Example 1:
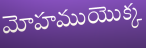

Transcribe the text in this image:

మోహముయొక్క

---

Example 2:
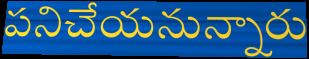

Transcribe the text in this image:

పనిచేయనున్నారు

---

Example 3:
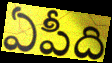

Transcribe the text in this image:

ఏపీది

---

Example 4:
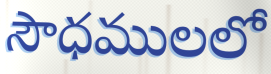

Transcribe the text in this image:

సౌధములలో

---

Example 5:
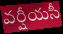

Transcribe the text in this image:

వర్షీయసీ